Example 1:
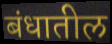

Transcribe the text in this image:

बंधातील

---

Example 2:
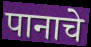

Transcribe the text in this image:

पानाचे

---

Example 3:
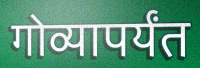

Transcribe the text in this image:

गोव्यापर्यंत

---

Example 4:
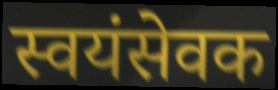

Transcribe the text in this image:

स्वयंसेवक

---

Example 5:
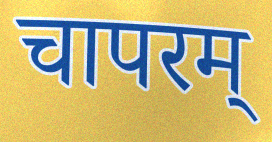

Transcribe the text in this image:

चापरम्